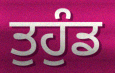
ਤੁਹੁੰਡ